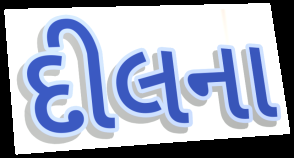
દીલના